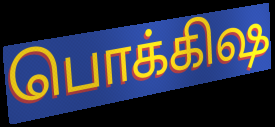
பொக்கிஷ